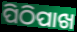
ପିଠିପାଖ